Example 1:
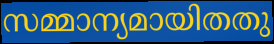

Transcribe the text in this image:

സമ്മാന്യമായിതതു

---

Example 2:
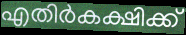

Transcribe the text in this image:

എതിർകക്ഷിക്ക്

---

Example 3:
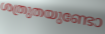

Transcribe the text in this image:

ശത്രുതയുണ്ടോ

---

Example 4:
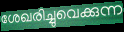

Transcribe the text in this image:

ശേഖരിച്ചുവെക്കുന്ന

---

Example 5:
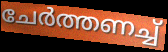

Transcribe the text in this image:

ചേർത്തണച്ച്